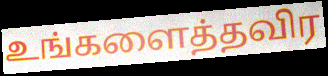
உங்களைத்தவிர